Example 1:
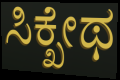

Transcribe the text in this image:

ಸಿಕ್ಖೇಥ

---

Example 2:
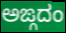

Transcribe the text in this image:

ಅಙ್ಗದಂ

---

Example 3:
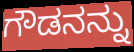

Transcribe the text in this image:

ಗೌಡನನ್ನು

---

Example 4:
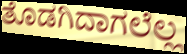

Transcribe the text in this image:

ತೊಡಗಿದಾಗಲೆಲ್ಲ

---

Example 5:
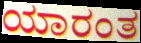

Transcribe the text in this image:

ಯಾರಂತ